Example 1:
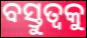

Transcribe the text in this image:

ବସ୍ତୁତ୍ଵକୁ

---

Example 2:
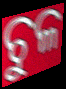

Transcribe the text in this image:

ଚୁଳ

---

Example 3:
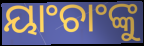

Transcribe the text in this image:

ୟାଂଚାଂଙ୍କୁ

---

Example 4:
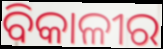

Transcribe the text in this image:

ବିକାଳୀର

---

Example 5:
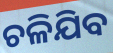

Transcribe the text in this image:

ଚଳିଯିବ